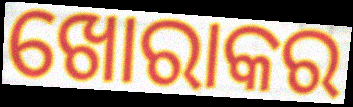
ଖୋରାକର